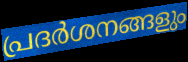
പ്രദർശനങ്ങളും